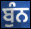
ਬੁੰਨ